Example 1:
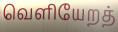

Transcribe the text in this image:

வெளியேறத்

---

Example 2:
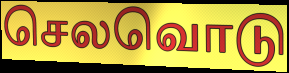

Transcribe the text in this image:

செலவொடு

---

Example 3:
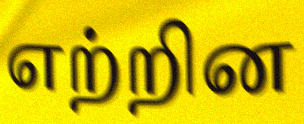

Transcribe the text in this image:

எற்றின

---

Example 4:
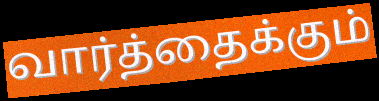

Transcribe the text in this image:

வார்த்தைக்கும்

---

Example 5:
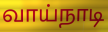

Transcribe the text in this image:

வாய்நாடி